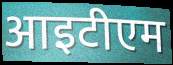
आइटीएम